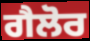
ਗੈਲੋਰ